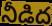
నీడిద